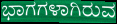
ಭಾಗಗಳಾಗಿರುವ